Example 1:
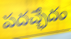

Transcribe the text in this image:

పదచ్ఛేదం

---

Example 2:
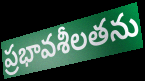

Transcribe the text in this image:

ప్రభావశీలతను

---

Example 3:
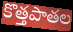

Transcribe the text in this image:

కొత్తపాతల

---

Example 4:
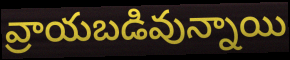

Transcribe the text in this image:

వ్రాయబడివున్నాయి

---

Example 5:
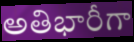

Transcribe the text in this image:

అతిభారీగా